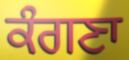
ਕੰਗਣਾ